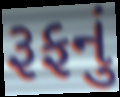
રૂફનું